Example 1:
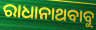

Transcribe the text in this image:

ରାଧାନାଥବାବୁ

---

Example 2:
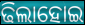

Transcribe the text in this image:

ଢିଲାହୋଇ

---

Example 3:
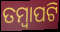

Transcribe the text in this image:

ତମ୍ବାପଟି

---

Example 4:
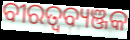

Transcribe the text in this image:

ବୀରତ୍ବବ୍ୟଞ୍ଜକ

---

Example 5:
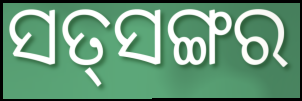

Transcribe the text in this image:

ସତ୍‌ସଙ୍ଗର